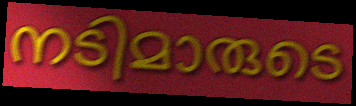
നടിമാരുടെ